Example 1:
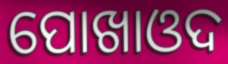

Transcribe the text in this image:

ପୋଖାଓଦ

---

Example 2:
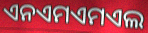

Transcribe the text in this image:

ଏନଏମଏମଏଲ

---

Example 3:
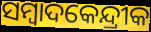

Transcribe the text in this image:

ସମ୍ୱାଦକେନ୍ଦ୍ରୀକ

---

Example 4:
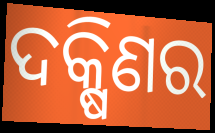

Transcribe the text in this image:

ଦକ୍ଷିଣର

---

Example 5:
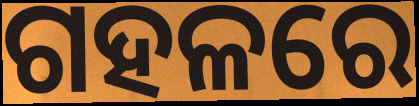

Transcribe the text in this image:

ଗହଳରେ